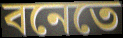
বনেতে